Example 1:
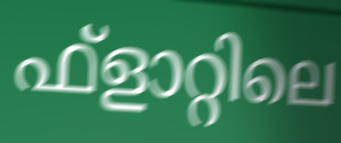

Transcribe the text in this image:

ഫ്ളാറ്റിലെ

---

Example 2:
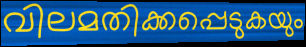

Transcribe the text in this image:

വിലമതിക്കപ്പെടുകയും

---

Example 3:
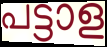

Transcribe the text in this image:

പട്ടാള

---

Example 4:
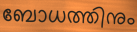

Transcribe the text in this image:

ബോധത്തിനും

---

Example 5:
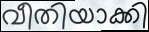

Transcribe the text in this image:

വീതിയാക്കി